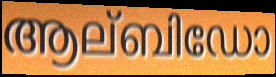
ആല്ബിഡോ